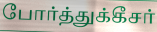
போர்த்துக்கீசர்